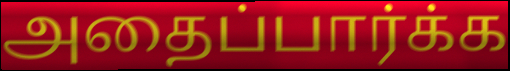
அதைப்பார்க்க